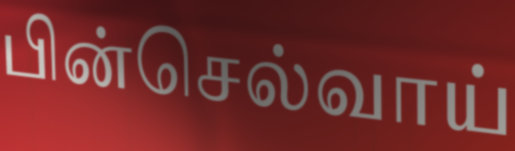
பின்செல்வாய்